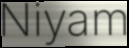
Niyam